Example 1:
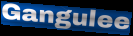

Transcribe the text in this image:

Gangulee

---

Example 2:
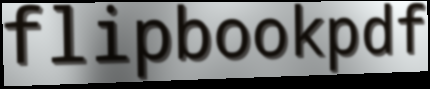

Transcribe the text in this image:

flipbookpdf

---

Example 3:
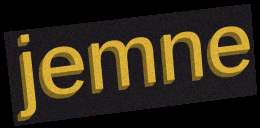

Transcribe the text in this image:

jemne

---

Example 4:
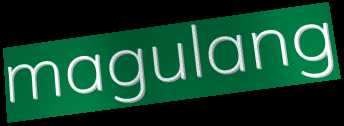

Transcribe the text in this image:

magulang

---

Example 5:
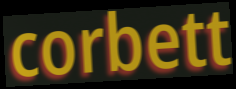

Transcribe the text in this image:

corbett